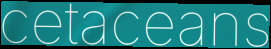
cetaceans